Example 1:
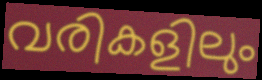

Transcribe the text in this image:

വരികളിലും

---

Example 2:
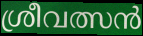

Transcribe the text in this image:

ശ്രീവത്സൻ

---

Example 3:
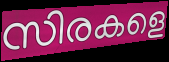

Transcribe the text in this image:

സിരകളെ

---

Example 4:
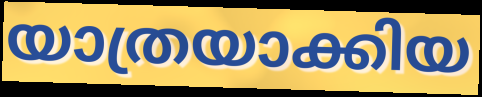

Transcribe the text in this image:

യാത്രയാക്കിയ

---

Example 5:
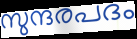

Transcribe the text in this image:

സുന്ദരപദം